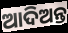
ଆଦିଅନ୍ତ